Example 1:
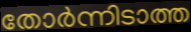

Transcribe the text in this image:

തോർന്നിടാത്ത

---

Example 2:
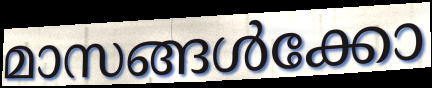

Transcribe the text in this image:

മാസങ്ങൾക്കോ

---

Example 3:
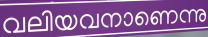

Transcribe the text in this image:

വലിയവനാണെന്നു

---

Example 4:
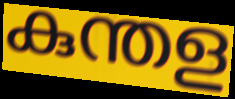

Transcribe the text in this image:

കുന്തള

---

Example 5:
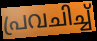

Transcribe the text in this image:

പ്രവചിച്ച്